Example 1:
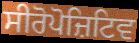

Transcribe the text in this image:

ਸੀਰੋਪੋਜ਼ਿਟਿਵ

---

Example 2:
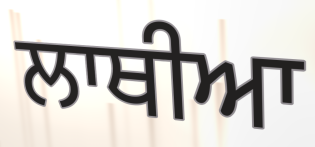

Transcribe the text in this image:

ਲਾਥੀਆ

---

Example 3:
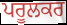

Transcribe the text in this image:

ਪਰੂਲਕਰ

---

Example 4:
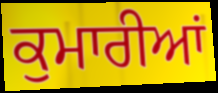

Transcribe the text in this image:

ਕੁਮਾਰੀਆਂ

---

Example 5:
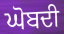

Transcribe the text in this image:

ਘੋਬਦੀ